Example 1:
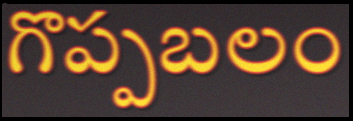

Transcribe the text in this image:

గొప్పబలం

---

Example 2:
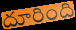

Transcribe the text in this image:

దూరింది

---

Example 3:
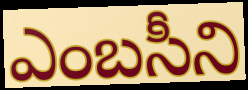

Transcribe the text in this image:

ఎంబసీని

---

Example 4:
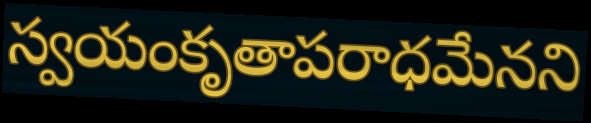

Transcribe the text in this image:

స్వయంకృతాపరాధమేనని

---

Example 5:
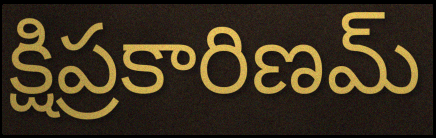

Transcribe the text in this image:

క్షిప్రకారిణమ్